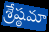
శ్రేష్ఠమా